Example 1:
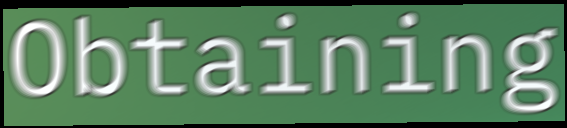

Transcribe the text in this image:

Obtaining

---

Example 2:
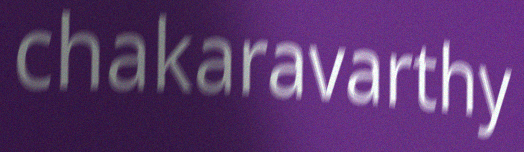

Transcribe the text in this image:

chakaravarthy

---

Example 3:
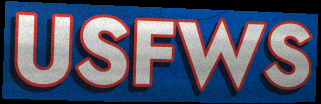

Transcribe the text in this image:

USFWS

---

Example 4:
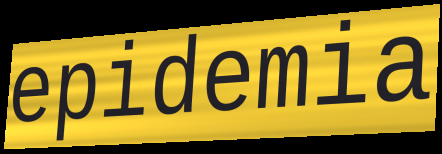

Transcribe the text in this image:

epidemia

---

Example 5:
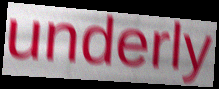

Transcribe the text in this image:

underly